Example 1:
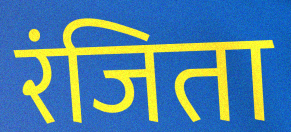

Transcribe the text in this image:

रंजिता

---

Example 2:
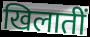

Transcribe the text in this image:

खिलातीं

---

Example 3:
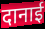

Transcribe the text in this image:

दानाई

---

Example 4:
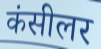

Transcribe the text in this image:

कंसीलर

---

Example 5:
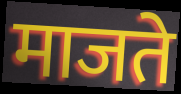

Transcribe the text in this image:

माजते